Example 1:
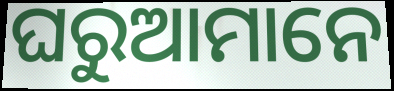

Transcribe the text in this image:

ଘରୁଆମାନେ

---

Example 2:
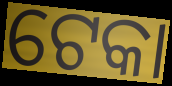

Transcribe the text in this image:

ଟେକା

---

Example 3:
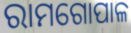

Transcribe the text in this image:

ରାମଗୋପାଳ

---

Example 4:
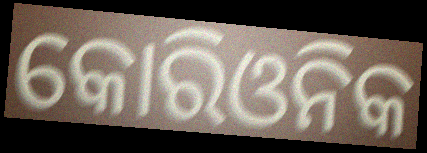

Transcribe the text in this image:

କୋରିଓନିକ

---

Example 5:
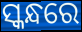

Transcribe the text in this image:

ସ୍କନ୍ଧରେ